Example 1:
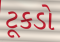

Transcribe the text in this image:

ટૂકડો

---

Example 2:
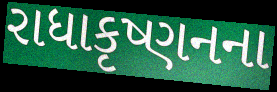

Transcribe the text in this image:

રાધાકૃષ્ણનના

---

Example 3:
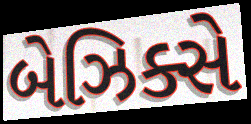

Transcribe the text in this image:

બેઝિક્સે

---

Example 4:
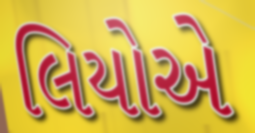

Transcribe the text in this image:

લિયોએ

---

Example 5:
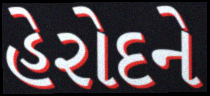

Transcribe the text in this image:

હેરોદને